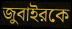
জুবাইরকে